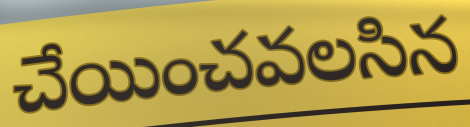
చేయించవలసిన